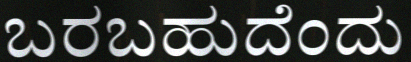
ಬರಬಹುದೆಂದು